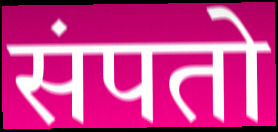
संपतो